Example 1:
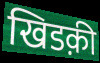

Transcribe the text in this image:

खिडक़ी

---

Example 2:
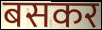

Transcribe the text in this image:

बसकर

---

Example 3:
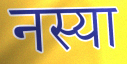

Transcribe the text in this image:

नस्या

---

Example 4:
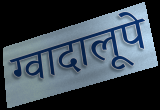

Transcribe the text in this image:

ग्वादालूपे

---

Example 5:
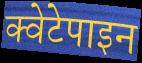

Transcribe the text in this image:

क्वेटेपाइन